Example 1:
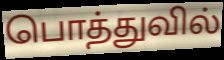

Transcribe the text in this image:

பொத்துவில்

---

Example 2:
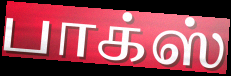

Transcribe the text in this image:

பாக்ஸ்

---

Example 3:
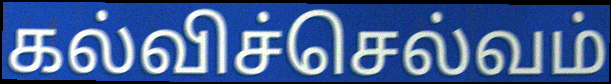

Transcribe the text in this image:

கல்விச்செல்வம்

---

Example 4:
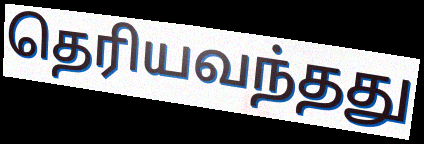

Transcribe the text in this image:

தெரியவந்தது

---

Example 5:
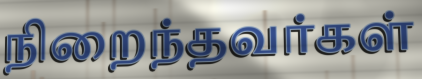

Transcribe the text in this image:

நிறைந்தவர்கள்